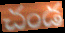
చండ